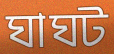
ঘাঘট